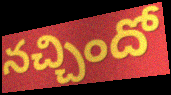
నచ్చిందో